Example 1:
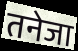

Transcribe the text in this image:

तनेजा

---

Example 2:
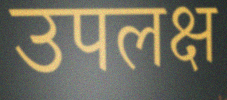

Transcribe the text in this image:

उपलक्ष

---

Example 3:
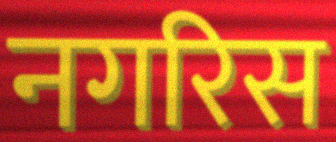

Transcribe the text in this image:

नगरिस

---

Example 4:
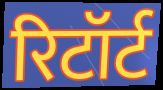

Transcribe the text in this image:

रिटॉर्ट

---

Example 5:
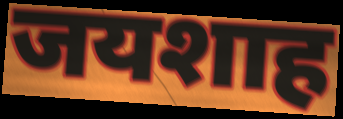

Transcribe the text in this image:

जयशाह